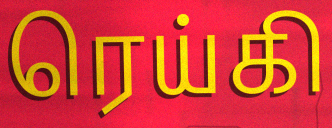
ரெய்கி